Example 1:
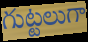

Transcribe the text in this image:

గుట్టలుగా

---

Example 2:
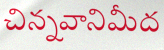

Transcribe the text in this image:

చిన్నవానిమీద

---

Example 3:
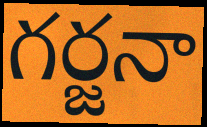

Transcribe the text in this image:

గర్జనా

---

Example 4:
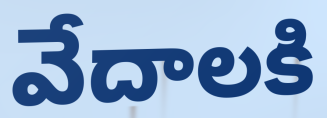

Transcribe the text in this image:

వేదాలకి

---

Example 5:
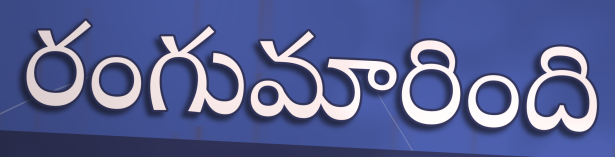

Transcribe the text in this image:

రంగుమారింది